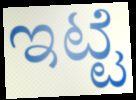
ಇಟ್ಟೆ